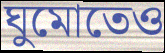
ঘুমোতেও